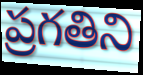
ప్రగతిని